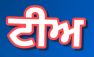
ਟੀਅ